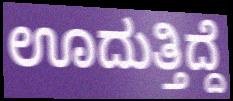
ಊದುತ್ತಿದ್ದೆ